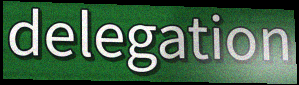
delegation